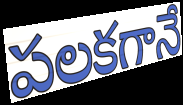
పలకగానే